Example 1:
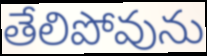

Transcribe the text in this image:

తేలిపోవును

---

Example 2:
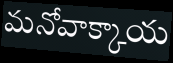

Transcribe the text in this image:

మనోవాక్కాయ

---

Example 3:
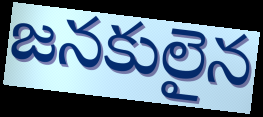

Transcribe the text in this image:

జనకులైన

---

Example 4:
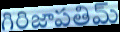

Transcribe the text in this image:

గిరిజాపతిమ్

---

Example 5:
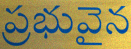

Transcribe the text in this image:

ప్రభువైన